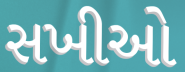
સખીઓ